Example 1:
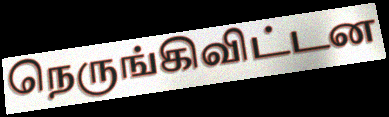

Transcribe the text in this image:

நெருங்கிவிட்டன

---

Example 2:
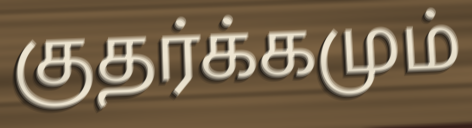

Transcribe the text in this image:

குதர்க்கமும்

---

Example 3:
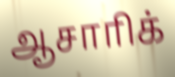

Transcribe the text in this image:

ஆசாரிக்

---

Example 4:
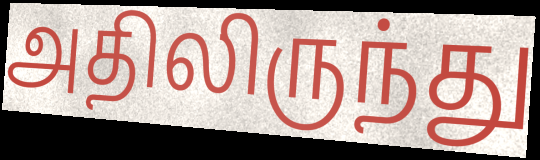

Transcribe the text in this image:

அதிலிருந்து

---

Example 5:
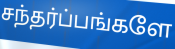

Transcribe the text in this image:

சந்தர்ப்பங்களே